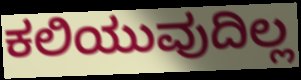
ಕಲಿಯುವುದಿಲ್ಲ